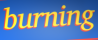
burning